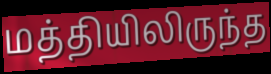
மத்தியிலிருந்த